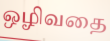
ஒழிவதை